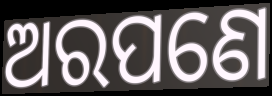
ଅରପଣେ